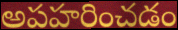
అపహరించడం